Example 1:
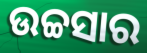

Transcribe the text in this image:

ଉଚ୍ଚସାର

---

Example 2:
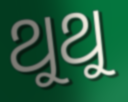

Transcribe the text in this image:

ଥୁଥୁ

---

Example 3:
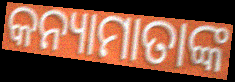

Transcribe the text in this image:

କନ୍ୟାମାତାଙ୍କ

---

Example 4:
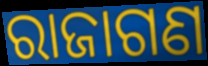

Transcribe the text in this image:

ରାଜାଗଣ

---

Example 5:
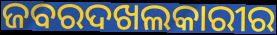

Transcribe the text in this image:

ଜବରଦଖଲକାରୀର